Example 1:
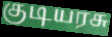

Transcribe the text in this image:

குடியரசு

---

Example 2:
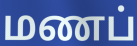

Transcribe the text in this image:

மணப்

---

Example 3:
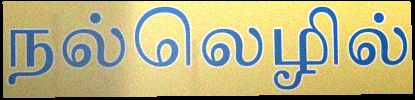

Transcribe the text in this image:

நல்லெழில்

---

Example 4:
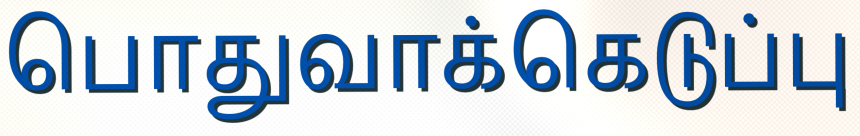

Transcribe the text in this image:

பொதுவாக்கெடுப்பு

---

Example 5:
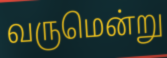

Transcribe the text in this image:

வருமென்று